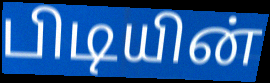
பிடியின்